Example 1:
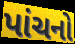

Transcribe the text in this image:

પાંચનો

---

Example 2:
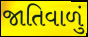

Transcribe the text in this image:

જાતિવાળું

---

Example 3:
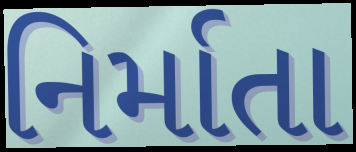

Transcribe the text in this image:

નિર્માતા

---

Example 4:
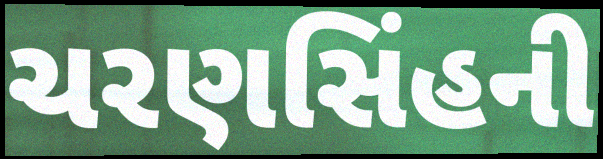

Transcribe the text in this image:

ચરણસિંહની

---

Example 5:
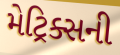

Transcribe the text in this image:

મેટ્રિક્સની